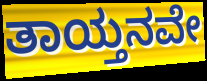
ತಾಯ್ತನವೇ